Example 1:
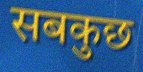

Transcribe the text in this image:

सबकुछ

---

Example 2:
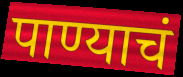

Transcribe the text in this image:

पाण्याचं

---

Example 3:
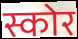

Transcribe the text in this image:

स्कोर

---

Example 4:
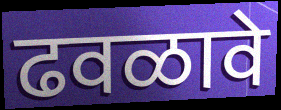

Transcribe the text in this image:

ढवळावे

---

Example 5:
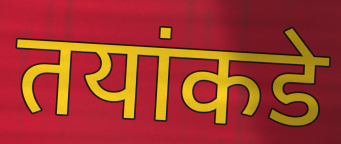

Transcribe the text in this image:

तयांकडे